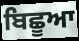
ਬਿਛੂਆ